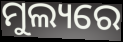
ମୁଲ୍ୟରେ